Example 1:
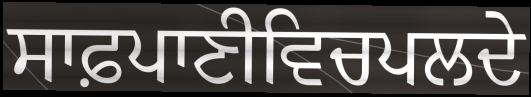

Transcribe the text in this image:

ਸਾਫ਼ਪਾਣੀਵਿਚਪਲਦੇ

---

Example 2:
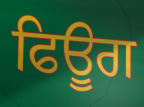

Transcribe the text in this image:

ਫਿਊਗ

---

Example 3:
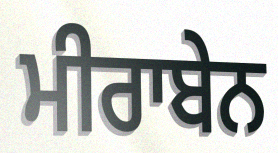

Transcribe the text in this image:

ਮੀਰਾਬੇਨ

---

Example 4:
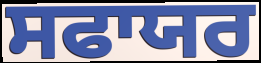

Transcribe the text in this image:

ਸਫਾਯਰ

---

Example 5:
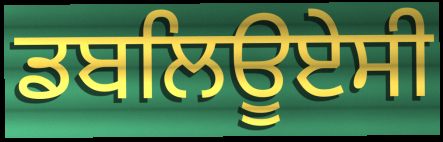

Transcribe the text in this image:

ਡਬਲਿਊਏਸੀ